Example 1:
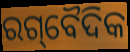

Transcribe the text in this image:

ରଗ୍‌ବୈଦିକ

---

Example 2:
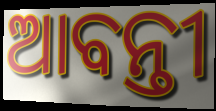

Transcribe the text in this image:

ଆବନ୍ତୀ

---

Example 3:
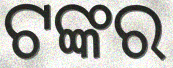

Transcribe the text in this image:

ଟଙ୍କର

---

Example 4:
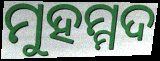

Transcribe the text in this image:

ମୁହମ୍ମଦ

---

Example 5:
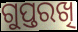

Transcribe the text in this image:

ଗୁପ୍ତରଖି